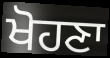
ਖੋਹਣਾ